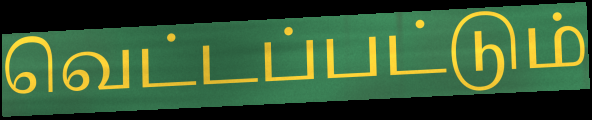
வெட்டப்பட்டும்